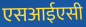
एसआईएसी